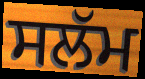
ਸਲੱਮ